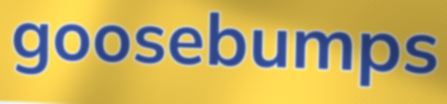
goosebumps